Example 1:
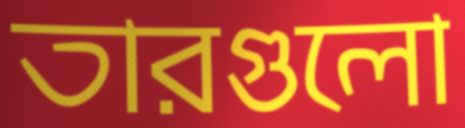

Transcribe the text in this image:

তারগুলো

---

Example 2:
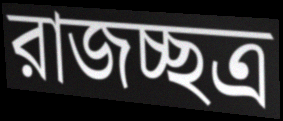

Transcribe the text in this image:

রাজচ্ছত্র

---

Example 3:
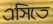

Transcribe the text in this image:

এসিতে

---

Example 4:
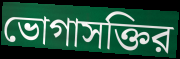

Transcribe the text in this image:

ভোগাসক্তির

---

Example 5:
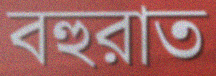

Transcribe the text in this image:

বহুরাত